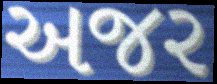
અજર